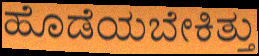
ಹೊಡೆಯಬೇಕಿತ್ತು